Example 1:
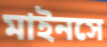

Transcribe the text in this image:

মাইনসে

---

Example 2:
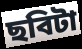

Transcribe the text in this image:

ছবিটা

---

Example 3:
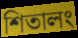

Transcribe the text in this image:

শিতালং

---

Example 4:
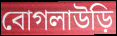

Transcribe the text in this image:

বোগলাউড়ি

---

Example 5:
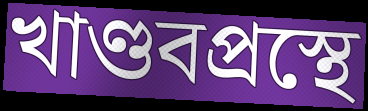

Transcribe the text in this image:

খাণ্ডবপ্রস্থে